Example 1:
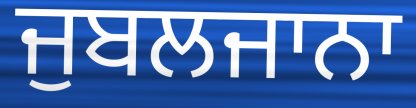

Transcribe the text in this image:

ਜੁਬਲਜਾਨਾ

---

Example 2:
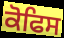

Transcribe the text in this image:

ਕੋਫਿਸ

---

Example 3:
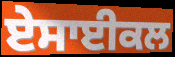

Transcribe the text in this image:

ਏਸਾਈਕਲ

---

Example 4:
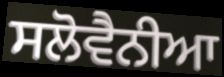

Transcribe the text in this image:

ਸਲੋਵੈਨੀਆ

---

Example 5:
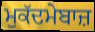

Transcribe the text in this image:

ਮੁਕੱਦਮੇਬਾਜ਼